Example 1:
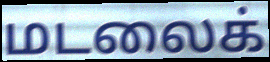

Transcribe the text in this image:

மடலைக்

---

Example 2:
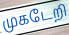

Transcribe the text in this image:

முகடேறி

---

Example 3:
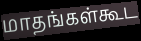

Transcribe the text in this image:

மாதங்கள்கூட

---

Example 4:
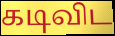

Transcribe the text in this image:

கடிவிட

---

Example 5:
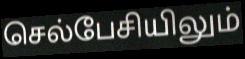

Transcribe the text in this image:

செல்பேசியிலும்